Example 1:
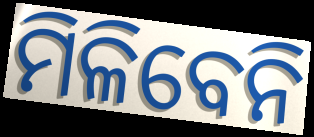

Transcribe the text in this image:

ମିଳିବେନି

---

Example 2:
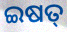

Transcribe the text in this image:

ଇଷତ୍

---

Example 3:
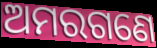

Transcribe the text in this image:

ଅମରଗଣେ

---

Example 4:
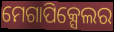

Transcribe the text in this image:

ମେଗାପିକ୍ସେଲର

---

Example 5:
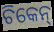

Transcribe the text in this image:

ଚିକେନ୍